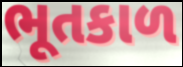
ભૂતકાળ